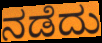
ನಡೆದು